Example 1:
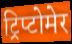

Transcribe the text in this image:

ट्रिप्टोमेर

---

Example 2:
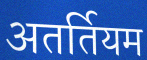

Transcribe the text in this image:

अतर्तियम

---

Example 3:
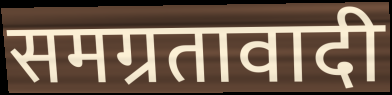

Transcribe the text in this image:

समग्रतावादी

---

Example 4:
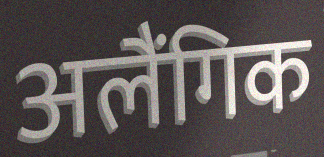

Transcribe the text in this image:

अलैंगिक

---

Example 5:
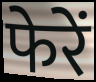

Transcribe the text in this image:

फेरें